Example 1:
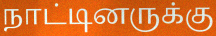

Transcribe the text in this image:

நாட்டினருக்கு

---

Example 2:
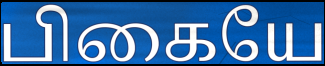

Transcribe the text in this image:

பிகையே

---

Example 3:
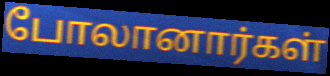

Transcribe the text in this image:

போலானார்கள்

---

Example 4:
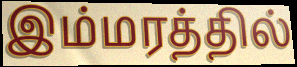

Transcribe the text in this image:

இம்மரத்தில்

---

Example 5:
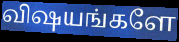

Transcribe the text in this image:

விஷயங்களே